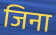
जिना